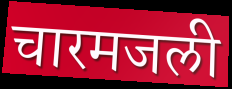
चारमजली